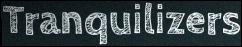
Tranquilizers